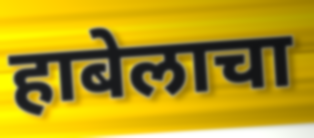
हाबेलाचा